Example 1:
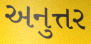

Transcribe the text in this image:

અનુત્તર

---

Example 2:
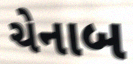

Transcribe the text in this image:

ચેનાબ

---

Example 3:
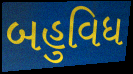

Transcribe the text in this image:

બહુવિધ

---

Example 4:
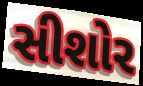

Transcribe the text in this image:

સીશોર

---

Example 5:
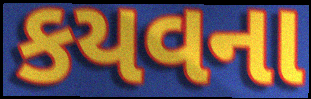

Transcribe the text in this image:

કયવના